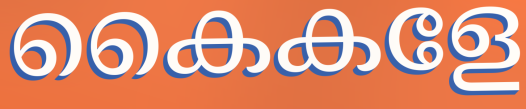
കൈകളേ